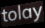
tolay